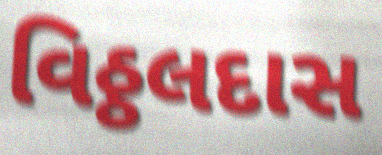
વિઠ્ઠલદાસ